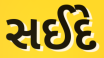
સઈદે